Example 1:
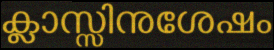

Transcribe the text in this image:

ക്ലാസ്സിനുശേഷം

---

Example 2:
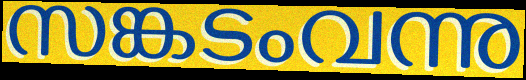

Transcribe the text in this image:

സങ്കടംവന്നു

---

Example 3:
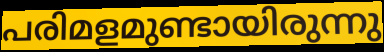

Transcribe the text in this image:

പരിമളമുണ്ടായിരുന്നു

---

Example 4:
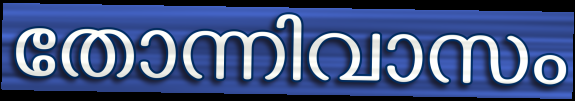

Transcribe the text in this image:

തോന്നിവാസം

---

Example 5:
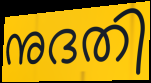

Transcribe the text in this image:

നുദതി